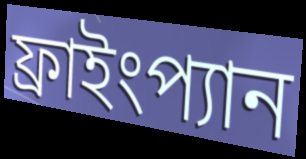
ফ্রাইংপ্যান